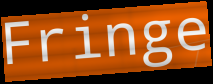
Fringe